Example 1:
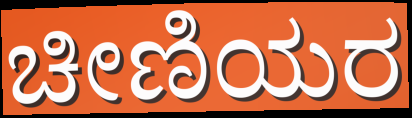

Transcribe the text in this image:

ಚೀಣಿಯರ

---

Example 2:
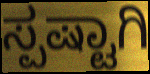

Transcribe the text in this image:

ಸ್ಪಷ್ಟಾಗಿ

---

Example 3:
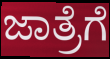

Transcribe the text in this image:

ಜಾತ್ರೆಗೆ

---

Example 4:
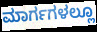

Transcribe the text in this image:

ಮಾರ್ಗಗಳಲ್ಲೂ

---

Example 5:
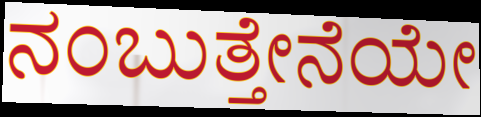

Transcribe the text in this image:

ನಂಬುತ್ತೇನೆಯೇ